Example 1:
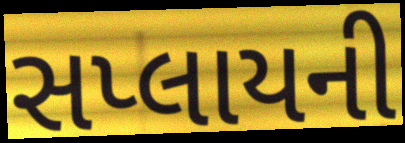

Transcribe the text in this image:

સપ્લાયની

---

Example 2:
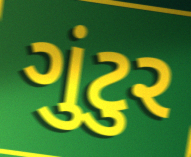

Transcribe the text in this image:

ગુંટુર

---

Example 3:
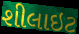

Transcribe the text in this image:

શીલાઇટ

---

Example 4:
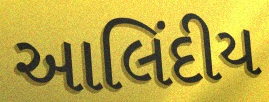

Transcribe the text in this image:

આલિંદીય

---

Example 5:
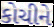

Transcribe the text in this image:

કોચીને